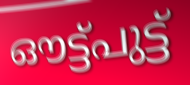
ഔട്ട്പുട്ട്